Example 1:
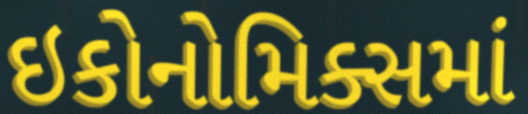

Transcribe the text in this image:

ઇકોનોમિક્સમાં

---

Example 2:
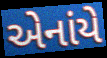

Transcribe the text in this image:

એનાંયે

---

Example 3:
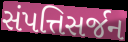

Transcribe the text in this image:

સંપત્તિસર્જન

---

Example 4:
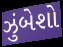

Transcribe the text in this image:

ઝુંબેશો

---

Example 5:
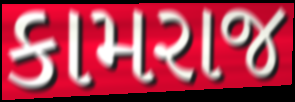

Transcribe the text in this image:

કામરાજ